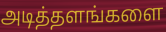
அடித்தளங்களை